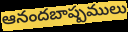
ఆనందబాష్పములు